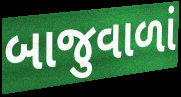
બાજુવાળાં